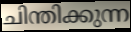
ചിന്തിക്കുന്ന